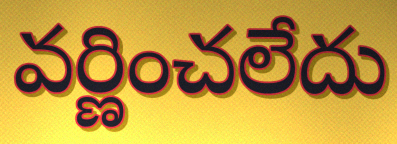
వర్ణించలేదు